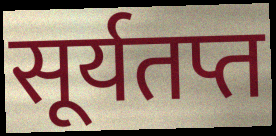
सूर्यतप्त